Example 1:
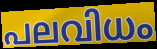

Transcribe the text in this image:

പലവിധം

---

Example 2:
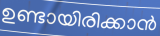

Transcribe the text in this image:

ഉണ്ടായിരിക്കാൻ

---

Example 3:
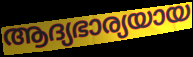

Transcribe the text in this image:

ആദ്യഭാര്യയായ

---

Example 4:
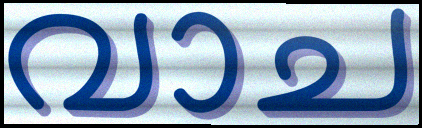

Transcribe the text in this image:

വാച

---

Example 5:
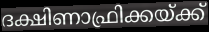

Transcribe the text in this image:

ദക്ഷിണാഫ്രിക്കയ്ക്ക്